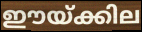
ഈയ്ക്കില